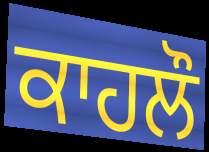
ਕਾਹਲੌ